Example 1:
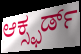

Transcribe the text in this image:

ಆಕ್ಸ್ಫರ್ಡ್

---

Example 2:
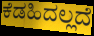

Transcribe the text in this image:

ಕೆಡಹಿದಲ್ಲದೆ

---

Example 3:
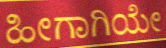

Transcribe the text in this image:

ಹೀಗಾಗಿಯೇ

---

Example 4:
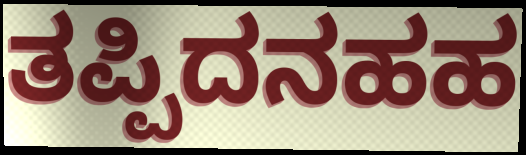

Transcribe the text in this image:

ತಪ್ಪಿದನಹಹ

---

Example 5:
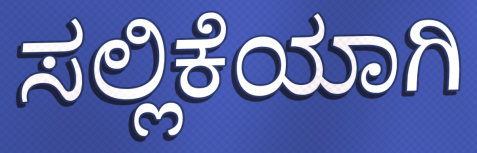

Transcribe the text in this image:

ಸಲ್ಲಿಕೆಯಾಗಿ